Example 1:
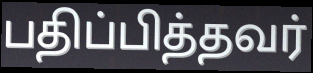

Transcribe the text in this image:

பதிப்பித்தவர்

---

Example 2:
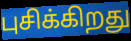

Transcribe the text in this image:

புசிக்கிறது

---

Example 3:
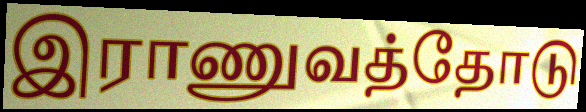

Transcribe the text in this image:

இராணுவத்தோடு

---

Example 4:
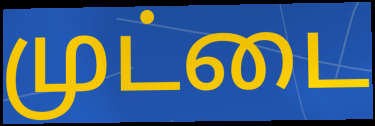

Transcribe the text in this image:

முட்டை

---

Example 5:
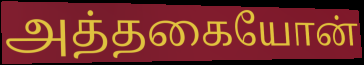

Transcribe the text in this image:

அத்தகையோன்